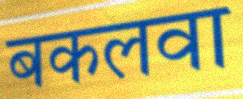
बकलवा